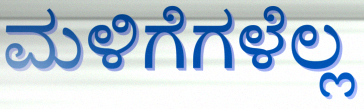
ಮಳಿಗೆಗಳೆಲ್ಲ